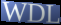
WDL